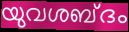
യുവശബ്ദം